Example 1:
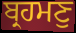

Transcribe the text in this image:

ਬ੍ਰਹਮਣੁ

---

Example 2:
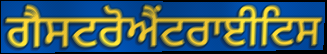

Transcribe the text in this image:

ਗੈਸਟਰੋਐਂਟਰਾਈਟਿਸ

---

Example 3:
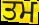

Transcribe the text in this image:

ਤਮ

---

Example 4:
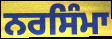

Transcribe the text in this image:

ਨਰਸਿੰਮਾ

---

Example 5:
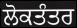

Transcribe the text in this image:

ਲੋਕਤੰਤਰ